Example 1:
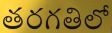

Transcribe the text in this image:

తరగతిలో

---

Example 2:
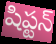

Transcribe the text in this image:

షిప్టన్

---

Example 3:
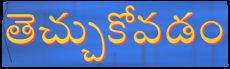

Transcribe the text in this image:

తెచ్చుకోవడం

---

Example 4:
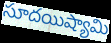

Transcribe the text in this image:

సూదయిష్యామి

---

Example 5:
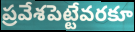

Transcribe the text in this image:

ప్రవేశపెట్టేవరకూ